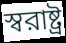
স্বরাষ্ট্র